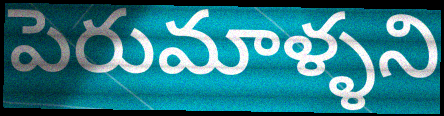
పెరుమాళ్ళని